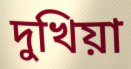
দুখিয়া